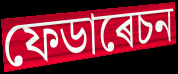
ফেডাৰেচন